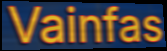
Vainfas